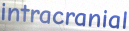
intracranial